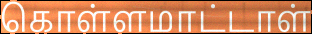
கொள்ளமாட்டாள்